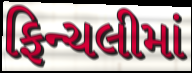
ફિન્ચલીમાં